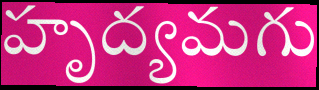
హృద్యమగు